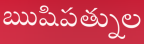
ఋషిపత్నుల